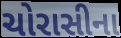
ચોરાસીના